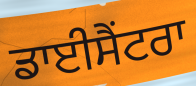
ਡਾਈਸੈਂਟਰਾ